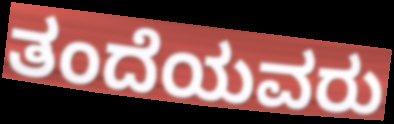
ತಂದೆಯವರು